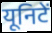
यूनिटें